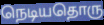
நெடியதொரு